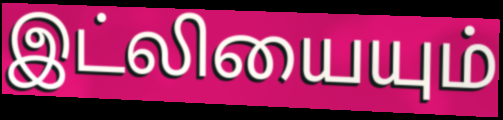
இட்லியையும்